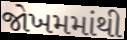
જોખમમાંથી